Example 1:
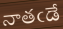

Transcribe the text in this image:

నాతఁడే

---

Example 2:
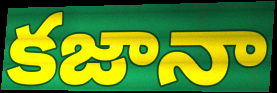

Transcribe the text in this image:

కజానా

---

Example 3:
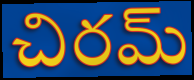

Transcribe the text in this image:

చిరమ్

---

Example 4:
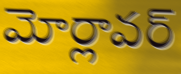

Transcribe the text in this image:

మోర్లావర్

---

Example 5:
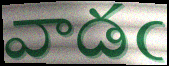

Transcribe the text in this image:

వాడఁ